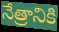
నేత్రానికి